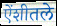
ऐंशीतले